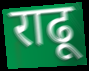
राढू